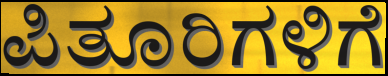
ಪಿತೂರಿಗಳಿಗೆ